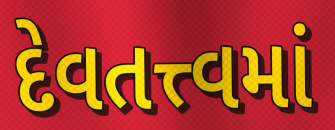
દેવતત્ત્વમાં